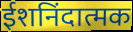
ईशनिंदात्मक